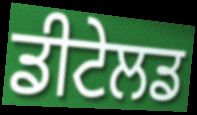
ਡੀਟੇਲਡ